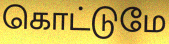
கொட்டுமே